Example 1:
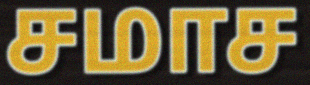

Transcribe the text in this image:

சமாச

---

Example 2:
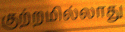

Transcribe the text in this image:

குற்றமில்லாது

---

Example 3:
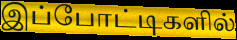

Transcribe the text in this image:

இப்போட்டிகளில்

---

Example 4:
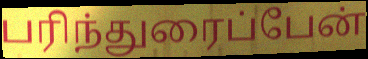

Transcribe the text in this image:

பரிந்துரைப்பேன்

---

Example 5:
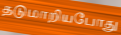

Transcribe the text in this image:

தடுமாறியபோது